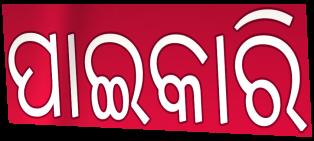
ପାଇକାରି